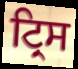
ਟ੍ਰਿਸ